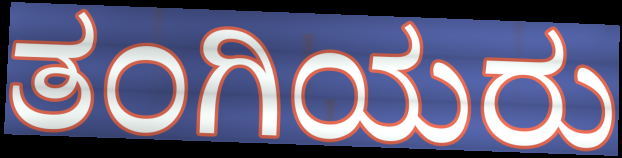
ತಂಗಿಯರು